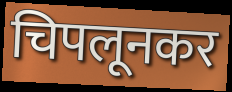
चिपलूनकर